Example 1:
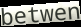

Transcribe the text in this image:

betwen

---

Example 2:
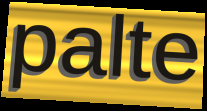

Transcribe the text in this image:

palte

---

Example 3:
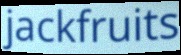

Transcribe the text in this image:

jackfruits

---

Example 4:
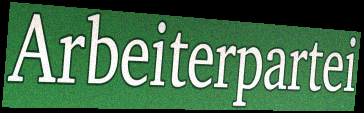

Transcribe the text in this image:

Arbeiterpartei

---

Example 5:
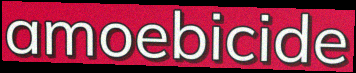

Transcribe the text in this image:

amoebicide